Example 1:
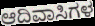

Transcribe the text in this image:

ಆದಿವಾಸಿಗಳ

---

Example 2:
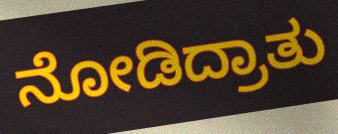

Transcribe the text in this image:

ನೋಡಿದ್ರಾತು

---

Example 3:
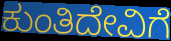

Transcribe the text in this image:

ಕುಂತಿದೇವಿಗೆ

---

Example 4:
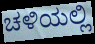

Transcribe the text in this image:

ಚಳಿಯಲ್ಲಿ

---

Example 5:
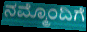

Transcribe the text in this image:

ನಮ್ಮೊಂದಿಗೆ